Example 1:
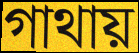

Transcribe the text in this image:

গাথায়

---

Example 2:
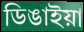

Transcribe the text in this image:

ডিঙাইয়া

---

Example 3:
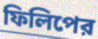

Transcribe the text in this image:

ফিলিপের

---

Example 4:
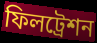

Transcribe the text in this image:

ফিলট্রেশন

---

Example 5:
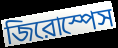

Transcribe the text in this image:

জিরোস্পেস